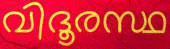
വിദൂരസ്ഥ